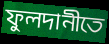
ফুলদানীতে